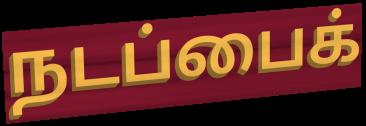
நடப்பைக்